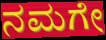
ನಮಗೇ